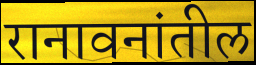
रानावनांतील